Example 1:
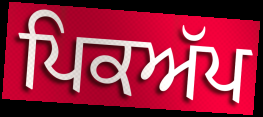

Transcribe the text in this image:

ਪਿਕਅੱਪ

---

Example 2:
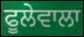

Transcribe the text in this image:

ਫੂਲੇਵਾਲਾ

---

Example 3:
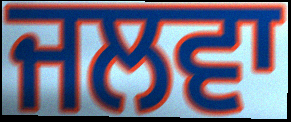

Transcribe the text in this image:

ਜਲਵਾ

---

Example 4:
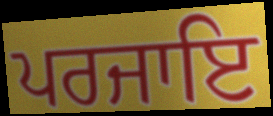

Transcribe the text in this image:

ਪਰਜਾਇ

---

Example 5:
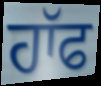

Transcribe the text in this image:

ਹਾੱਫ